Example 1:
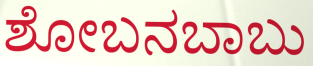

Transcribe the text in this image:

ಶೋಬನಬಾಬು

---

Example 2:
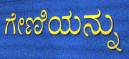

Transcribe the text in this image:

ಗೇಣಿಯನ್ನು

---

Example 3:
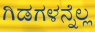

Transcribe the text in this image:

ಗಿಡಗಳನ್ನೆಲ್ಲ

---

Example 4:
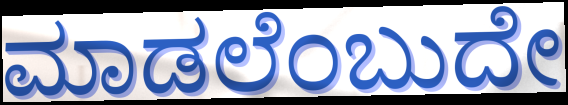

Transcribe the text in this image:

ಮಾಡಲೆಂಬುದೇ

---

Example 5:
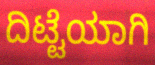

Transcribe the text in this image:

ದಿಟ್ಟೆಯಾಗಿ